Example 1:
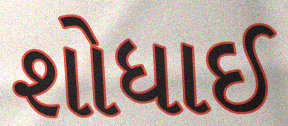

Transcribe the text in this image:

શોધાઈ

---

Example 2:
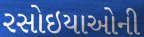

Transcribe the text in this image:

રસોઇયાઓની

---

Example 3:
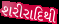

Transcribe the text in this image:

શરીરાદિથી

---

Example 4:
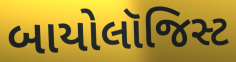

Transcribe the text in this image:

બાયોલૉજિસ્ટ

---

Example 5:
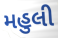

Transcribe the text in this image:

મહુલી